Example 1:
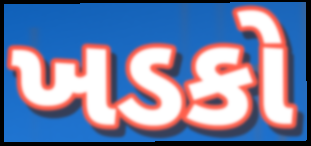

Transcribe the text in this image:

ખડકો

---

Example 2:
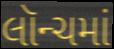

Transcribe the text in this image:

લૉન્ચમાં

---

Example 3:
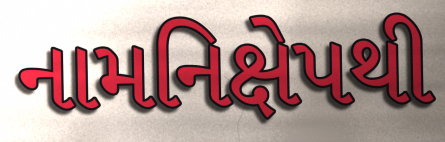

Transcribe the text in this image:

નામનિક્ષેપથી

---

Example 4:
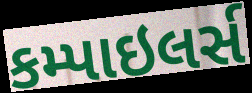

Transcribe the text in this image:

કમ્પાઇલર્સ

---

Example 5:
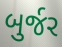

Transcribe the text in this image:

બુર્જર